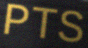
PTS